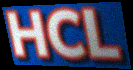
HCL